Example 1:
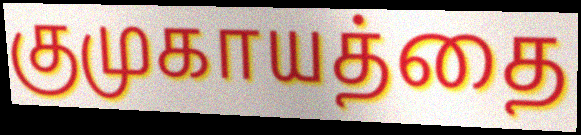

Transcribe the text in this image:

குமுகாயத்தை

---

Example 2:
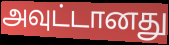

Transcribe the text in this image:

அவுட்டானது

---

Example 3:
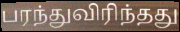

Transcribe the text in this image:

பரந்துவிரிந்தது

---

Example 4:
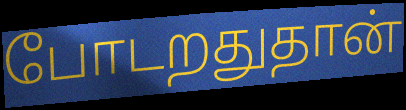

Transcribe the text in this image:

போடறதுதான்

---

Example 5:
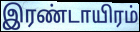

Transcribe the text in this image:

இரண்டாயிரம்